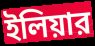
ইলিয়ার